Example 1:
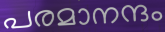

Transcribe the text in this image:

പരമാനന്ദം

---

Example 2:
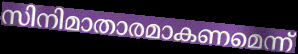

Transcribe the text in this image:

സിനിമാതാരമാകണമെന്ന്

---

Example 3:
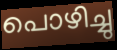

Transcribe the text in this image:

പൊഴിച്ചു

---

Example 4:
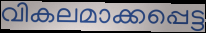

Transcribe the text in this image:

വികലമാക്കപ്പെട്ട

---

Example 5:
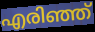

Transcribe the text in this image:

എരിഞ്ഞ്